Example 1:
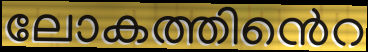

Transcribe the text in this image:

ലോകത്തിൻെറ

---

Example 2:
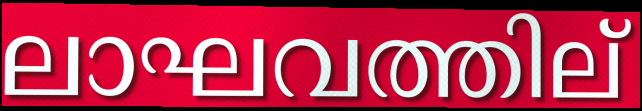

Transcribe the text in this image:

ലാഘവത്തില്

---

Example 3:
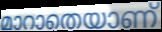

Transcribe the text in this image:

മാറാതെയാണ്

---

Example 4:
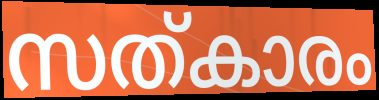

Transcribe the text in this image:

സത്കാരം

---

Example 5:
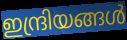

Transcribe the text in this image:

ഇന്ദ്രിയങ്ങൾ